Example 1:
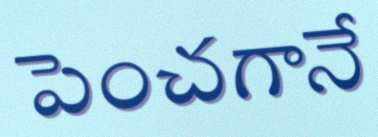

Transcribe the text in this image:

పెంచగానే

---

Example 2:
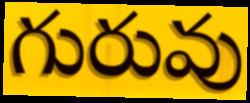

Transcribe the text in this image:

గురువు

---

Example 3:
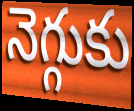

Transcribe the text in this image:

నెగ్గుకు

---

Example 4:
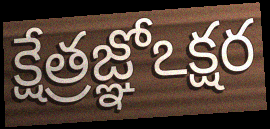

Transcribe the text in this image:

క్షేత్రజ్ఞోఽక్షర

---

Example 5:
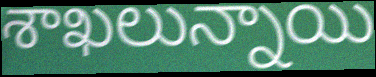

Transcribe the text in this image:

శాఖలున్నాయి